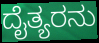
ದೈತ್ಯರನು